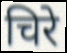
चिरे